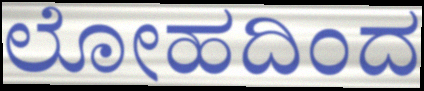
ಲೋಹದಿಂದ